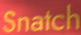
Snatch